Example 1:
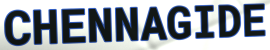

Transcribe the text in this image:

CHENNAGIDE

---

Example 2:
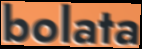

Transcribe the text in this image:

bolata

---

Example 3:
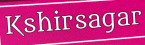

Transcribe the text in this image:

Kshirsagar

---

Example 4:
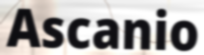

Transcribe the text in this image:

Ascanio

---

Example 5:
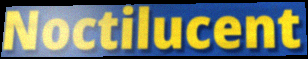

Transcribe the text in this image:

Noctilucent